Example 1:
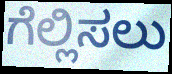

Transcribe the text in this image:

ಗೆಲ್ಲಿಸಲು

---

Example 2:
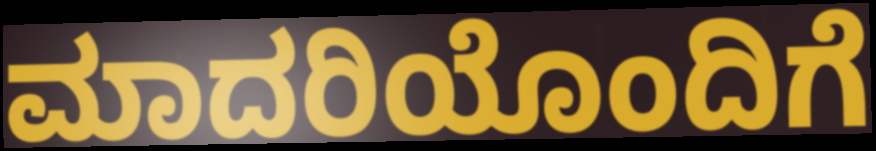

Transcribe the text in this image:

ಮಾದರಿಯೊಂದಿಗೆ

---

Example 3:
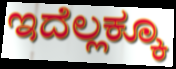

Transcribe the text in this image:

ಇದೆಲ್ಲಕ್ಕೂ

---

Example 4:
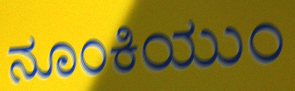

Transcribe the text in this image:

ನೂಂಕಿಯುಂ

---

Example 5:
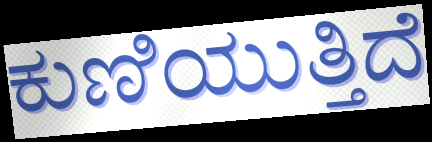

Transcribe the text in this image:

ಕುಣಿಯುತ್ತಿದೆ